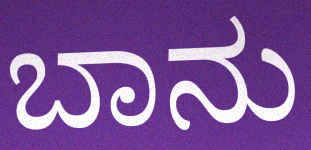
ಬಾನು